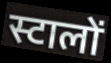
स्टालों